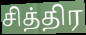
சித்திர